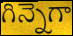
గిన్నెగా